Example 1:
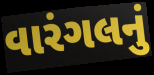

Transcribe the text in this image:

વારંગલનું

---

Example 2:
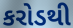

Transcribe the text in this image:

કરોડથી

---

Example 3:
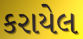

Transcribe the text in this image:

કરાયેલ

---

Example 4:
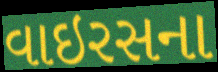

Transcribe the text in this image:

વાઇરસના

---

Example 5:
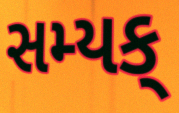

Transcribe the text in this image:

સમ્યક્